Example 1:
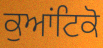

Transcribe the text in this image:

ਕੁਆਂਟਿਕੋ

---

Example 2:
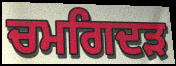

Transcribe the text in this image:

ਚਮਗਿਦੜ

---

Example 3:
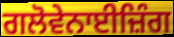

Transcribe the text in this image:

ਗਲੋਵੇਨਾਈਜ਼ਿੰਗ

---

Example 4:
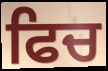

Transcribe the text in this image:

ਫਿਚ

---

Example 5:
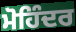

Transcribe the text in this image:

ਮੋਹਿੰਦਰ